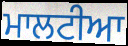
ਮਾਲਟੀਆ